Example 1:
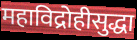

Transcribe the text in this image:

महाविद्रोहीसुद्धा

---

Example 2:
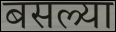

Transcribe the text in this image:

बसल्या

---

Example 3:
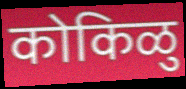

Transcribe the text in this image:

कोकिळु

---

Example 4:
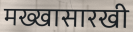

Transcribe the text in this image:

मख्खासारखी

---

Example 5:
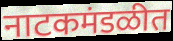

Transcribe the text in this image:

नाटकमंडळीत